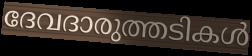
ദേവദാരുത്തടികൾ